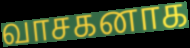
வாசகனாக